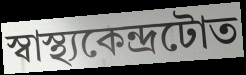
স্বাস্থ্যকেন্দ্ৰটোত